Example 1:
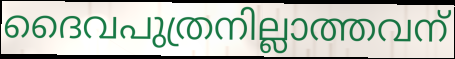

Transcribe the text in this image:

ദൈവപുത്രനില്ലാത്തവന്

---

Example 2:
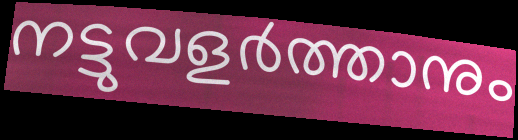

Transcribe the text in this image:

നട്ടുവളർത്താനും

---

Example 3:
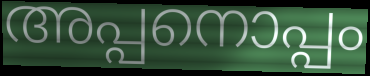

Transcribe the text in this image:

അപ്പനൊപ്പം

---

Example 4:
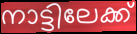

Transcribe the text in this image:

നാട്ടിലേക്ക്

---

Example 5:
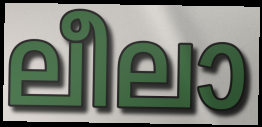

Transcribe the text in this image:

ലീലാ